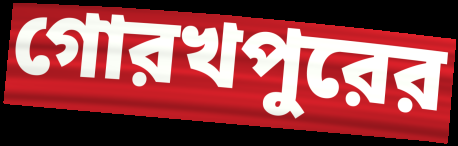
গোরখপুরের